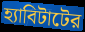
হ্যাবিটাটের